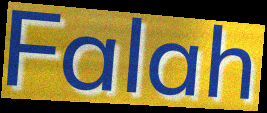
Falah